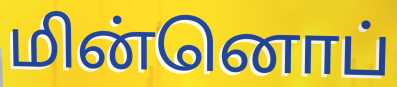
மின்னொப்